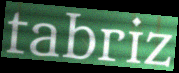
tabriz